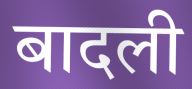
बादली